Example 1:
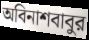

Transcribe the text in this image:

অবিনাশবাবুর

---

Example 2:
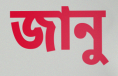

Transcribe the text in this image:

জানু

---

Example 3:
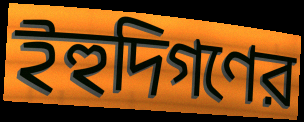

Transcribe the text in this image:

ইহুদিগণের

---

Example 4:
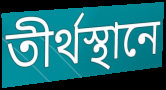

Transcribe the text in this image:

তীর্থস্থানে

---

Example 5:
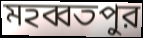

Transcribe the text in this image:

মহব্বতপুর